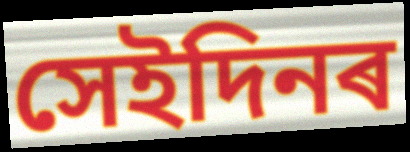
সেইদিনৰ